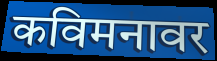
कविमनावर